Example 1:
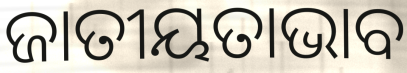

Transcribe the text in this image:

ଜାତୀୟତାଭାବ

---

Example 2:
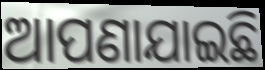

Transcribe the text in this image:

ଆପଣାଯାଇଛି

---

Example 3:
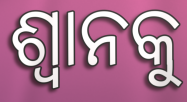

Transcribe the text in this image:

ଶ୍ଵାନକୁ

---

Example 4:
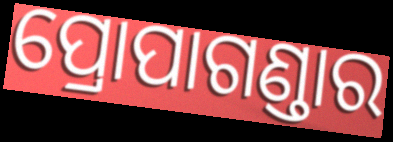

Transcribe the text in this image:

ପ୍ରୋପାଗଣ୍ଡାର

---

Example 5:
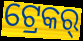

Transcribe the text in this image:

ଟ୍ରେକର୍